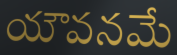
యౌవనమే